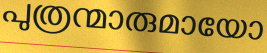
പുത്രന്മാരുമായോ